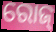
ରୋଜ୍